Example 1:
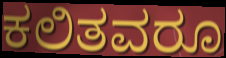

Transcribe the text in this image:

ಕಲಿತವರೂ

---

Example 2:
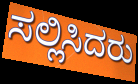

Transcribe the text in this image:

ಸಲ್ಲಿಸಿದರು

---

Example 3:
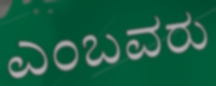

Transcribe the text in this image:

ಎಂಬವರು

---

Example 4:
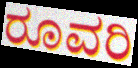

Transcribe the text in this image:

ರೂವರಿ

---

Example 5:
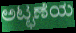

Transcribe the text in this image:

ಅಟ್ಟಣೆಯ